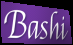
Bashi